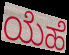
ಯೆಹೆ